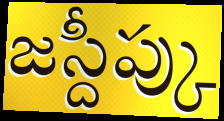
జస్దీప్కు